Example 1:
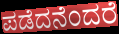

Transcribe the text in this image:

ಪಡೆದನೆಂದರೆ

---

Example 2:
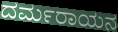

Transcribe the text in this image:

ದರ್ಮರಾಯನ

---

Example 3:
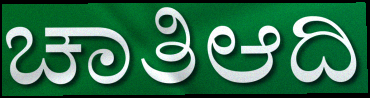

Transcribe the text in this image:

ಚಾತಿಆದಿ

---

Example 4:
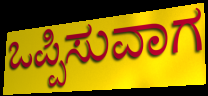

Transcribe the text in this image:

ಒಪ್ಪಿಸುವಾಗ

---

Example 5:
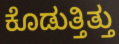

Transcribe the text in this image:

ಕೊಡುತ್ತಿತ್ತು